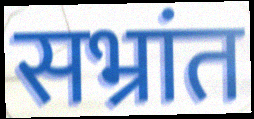
सभ्रांत